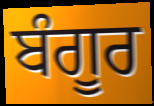
ਬੰਗੂਰ